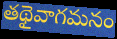
తథైవాగమనం